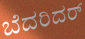
ಬೆದರಿದರ್